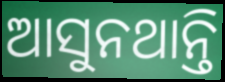
ଆସୁନଥାନ୍ତି